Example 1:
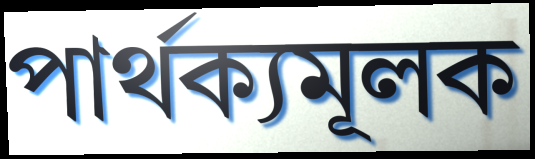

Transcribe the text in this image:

পার্থক্যমূলক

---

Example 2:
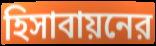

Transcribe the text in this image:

হিসাবায়নের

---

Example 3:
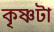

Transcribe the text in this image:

কৃষ্ণটা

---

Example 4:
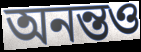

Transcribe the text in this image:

অনন্তও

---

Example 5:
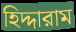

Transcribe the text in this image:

হিদ্দারাম